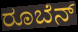
ರೂಬೆನ್